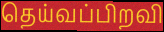
தெய்வப்பிறவி